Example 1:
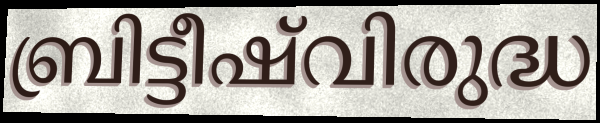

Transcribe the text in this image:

ബ്രിട്ടീഷ്‌വിരുദ്ധ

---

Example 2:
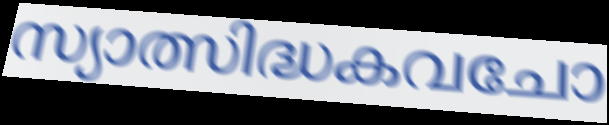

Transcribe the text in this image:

സ്യാത്സിദ്ധകവചോ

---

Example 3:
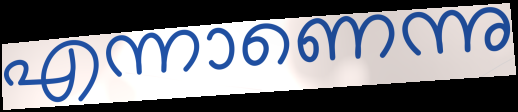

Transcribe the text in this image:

എന്നാണെന്നു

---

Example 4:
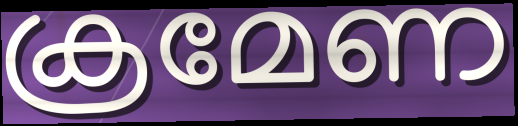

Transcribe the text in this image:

ക്രമേണ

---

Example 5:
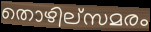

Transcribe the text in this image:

തൊഴില്സമരം